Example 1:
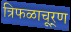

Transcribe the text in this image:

त्रिफळाचूर्ण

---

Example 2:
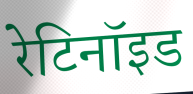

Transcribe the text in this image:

रेटिनॉइड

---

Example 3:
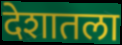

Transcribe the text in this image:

देशातला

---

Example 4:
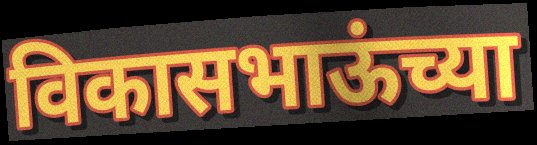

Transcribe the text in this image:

विकासभाऊंच्या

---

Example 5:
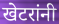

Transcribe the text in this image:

खेटरांनी